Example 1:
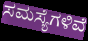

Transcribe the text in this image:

ಸಮಸ್ಯೆಗಳಿವೆ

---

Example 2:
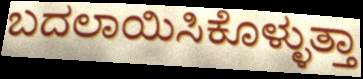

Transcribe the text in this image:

ಬದಲಾಯಿಸಿಕೊಳ್ಳುತ್ತಾ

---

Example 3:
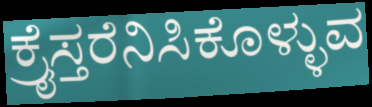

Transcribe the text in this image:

ಕ್ರೈಸ್ತರೆನಿಸಿಕೊಳ್ಳುವ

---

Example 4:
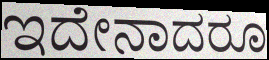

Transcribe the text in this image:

ಇದೇನಾದರೂ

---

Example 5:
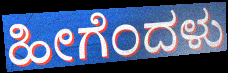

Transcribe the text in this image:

ಹೀಗೆಂದಳು